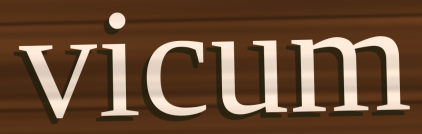
vicum